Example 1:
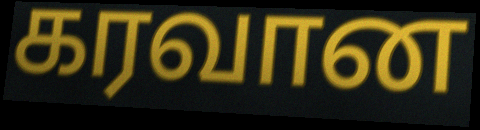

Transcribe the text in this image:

கரவான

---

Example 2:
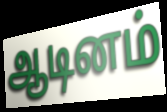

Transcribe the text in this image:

ஆடினம்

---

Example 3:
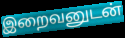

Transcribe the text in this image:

இறைவனுடன்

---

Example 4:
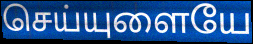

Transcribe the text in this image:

செய்யுளையே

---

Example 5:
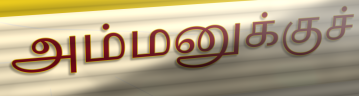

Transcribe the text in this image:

அம்மனுக்குச்